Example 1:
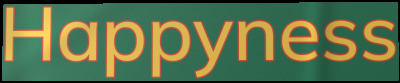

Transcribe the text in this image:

Happyness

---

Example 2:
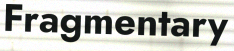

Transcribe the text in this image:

Fragmentary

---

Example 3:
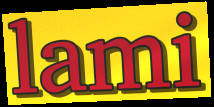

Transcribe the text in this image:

lami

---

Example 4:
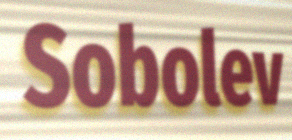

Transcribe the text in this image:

Sobolev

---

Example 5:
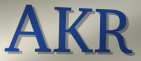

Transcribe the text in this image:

AKR